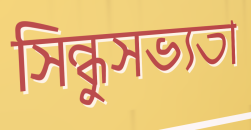
সিন্ধুসভ্যতা